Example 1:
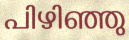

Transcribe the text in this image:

പിഴിഞ്ഞു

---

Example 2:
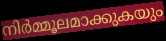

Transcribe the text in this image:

നിർമ്മൂലമാക്കുകയും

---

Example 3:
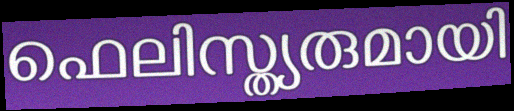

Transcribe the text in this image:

ഫെലിസ്ത്യരുമായി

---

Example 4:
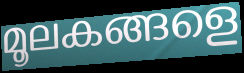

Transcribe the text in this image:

മൂലകങ്ങളെ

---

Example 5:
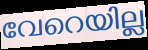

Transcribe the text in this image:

വേറെയില്ല